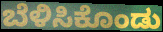
ಬೆಳಿಸಿಕೊಂಡು